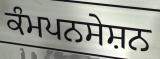
ਕੰਮਪਨਸੇਸ਼ਨ